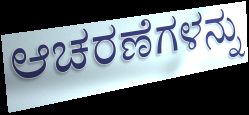
ಆಚರಣೆಗಳನ್ನು